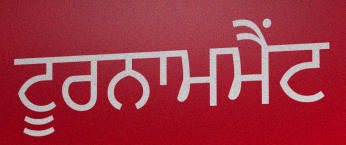
ਟੂਰਨਾਮਮੈਂਟ